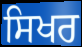
ਸਿਖਰ